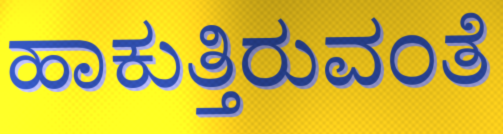
ಹಾಕುತ್ತಿರುವಂತೆ